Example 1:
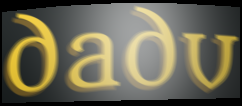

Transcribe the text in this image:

dadu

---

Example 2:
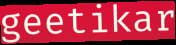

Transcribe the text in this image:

geetikar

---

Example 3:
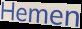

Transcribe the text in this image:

Hemen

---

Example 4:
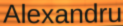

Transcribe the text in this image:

Alexandru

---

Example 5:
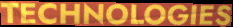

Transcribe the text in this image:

TECHNOLOGIES